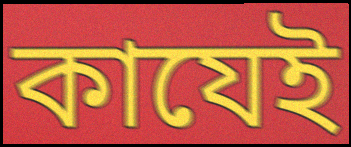
কাযেই